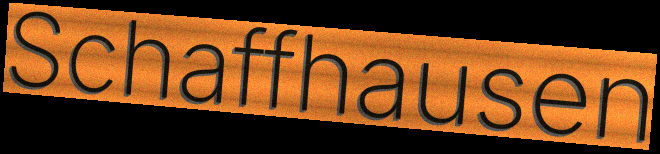
Schaffhausen